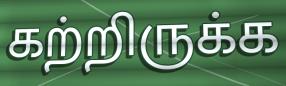
கற்றிருக்க